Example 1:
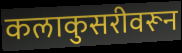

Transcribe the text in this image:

कलाकुसरीवरून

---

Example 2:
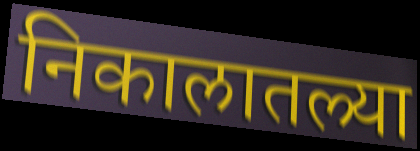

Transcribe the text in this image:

निकालातल्या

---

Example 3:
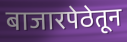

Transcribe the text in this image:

बाजारपेठेतून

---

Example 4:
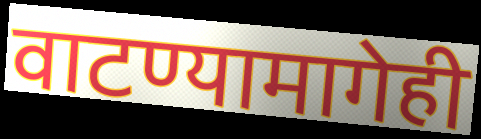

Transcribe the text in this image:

वाटण्यामागेही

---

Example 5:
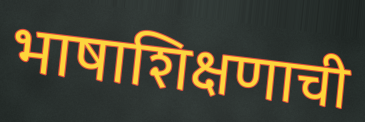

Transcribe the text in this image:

भाषाशिक्षणाची